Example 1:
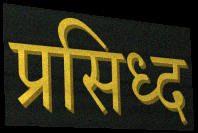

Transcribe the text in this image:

प्रसिध्द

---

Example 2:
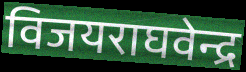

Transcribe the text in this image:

विजयराघवेन्द्र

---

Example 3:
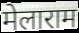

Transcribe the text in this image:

मेलाराम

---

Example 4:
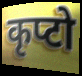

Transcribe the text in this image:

कृप्टो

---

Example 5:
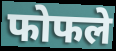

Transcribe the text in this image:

फोफले